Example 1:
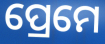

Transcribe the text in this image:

ପ୍ରେମେ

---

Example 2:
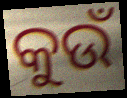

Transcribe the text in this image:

କୁଉଁ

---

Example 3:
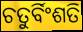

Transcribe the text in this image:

ଚତୁର୍ବିଂଶତି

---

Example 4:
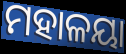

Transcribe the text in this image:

ମହାଳୟା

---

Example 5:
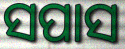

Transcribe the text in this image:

ସପାସ